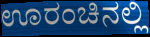
ಊರಂಚಿನಲ್ಲಿ